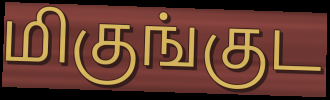
மிகுங்குட